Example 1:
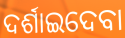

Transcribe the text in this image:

ଦର୍ଶାଇଦେବା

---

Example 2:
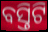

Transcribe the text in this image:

ବସ୍ତିଟି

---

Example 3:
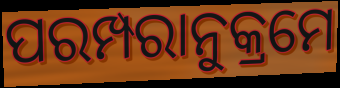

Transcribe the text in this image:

ପରମ୍ପରାନୁକ୍ରମେ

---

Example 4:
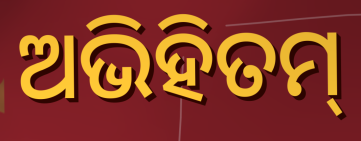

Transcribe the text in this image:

ଅଭିହିତମ୍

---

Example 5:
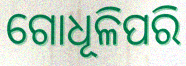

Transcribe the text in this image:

ଗୋଧୂଳିପରି